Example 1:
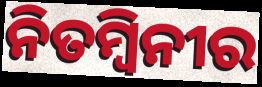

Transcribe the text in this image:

ନିତମ୍ବିନୀର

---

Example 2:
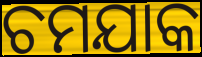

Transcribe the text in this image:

ଚମଯାକ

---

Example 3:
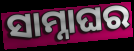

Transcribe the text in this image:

ସାମ୍ନାଘର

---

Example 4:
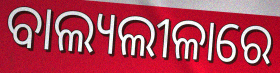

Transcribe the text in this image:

ବାଲ୍ୟଲୀଳାରେ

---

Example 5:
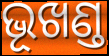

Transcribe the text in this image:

ଭୂଖଣ୍ଡ